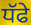
ਧੱਫੇ